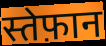
स्तेफ़ान